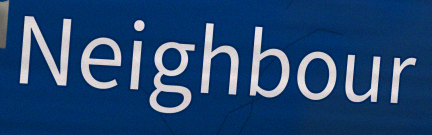
Neighbour